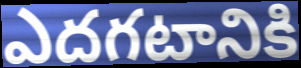
ఎదగటానికి